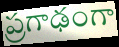
ప్రగాఢంగా